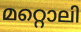
മറ്റൊലി